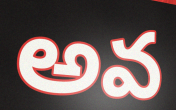
అవ